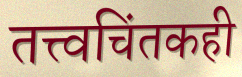
तत्त्वचिंतकही